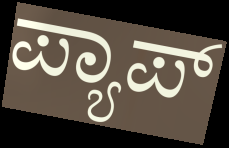
ಪ್ಯಾಪ್